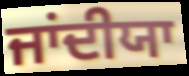
ਜਾਂਦੀਯਾ